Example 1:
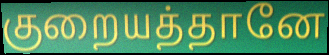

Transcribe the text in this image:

குறையத்தானே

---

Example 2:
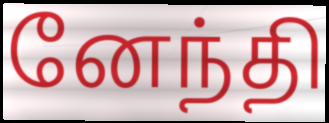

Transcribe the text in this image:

னேந்தி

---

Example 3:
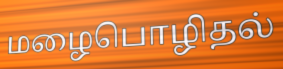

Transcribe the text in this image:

மழைபொழிதல்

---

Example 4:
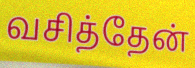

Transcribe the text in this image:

வசித்தேன்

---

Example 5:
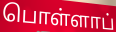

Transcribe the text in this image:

பொள்ளாப்